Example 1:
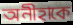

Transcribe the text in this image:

অনীহাকে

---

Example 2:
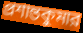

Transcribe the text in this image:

প্রশান্তকুমার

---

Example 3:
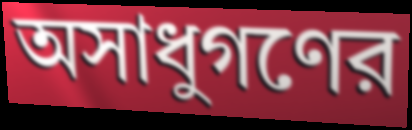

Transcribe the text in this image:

অসাধুগণের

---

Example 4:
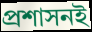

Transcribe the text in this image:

প্রশাসনই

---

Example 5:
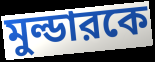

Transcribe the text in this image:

মুল্ডারকে